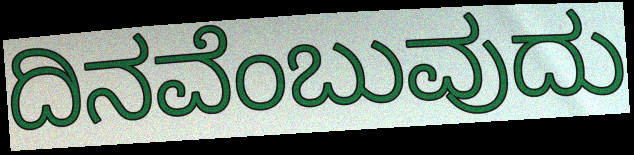
ದಿನವೆಂಬುವುದು